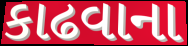
કાઢવાના